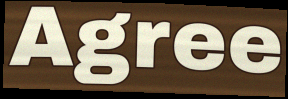
Agree